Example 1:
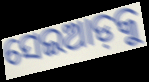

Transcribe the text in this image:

ସେଇଆଡ଼କୁ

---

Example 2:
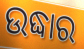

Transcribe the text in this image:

ଉଦ୍ଧାର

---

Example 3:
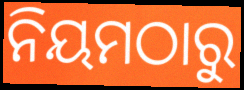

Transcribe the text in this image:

ନିୟମଠାରୁ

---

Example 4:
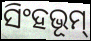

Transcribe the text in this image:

ସିଂହଭୂମ୍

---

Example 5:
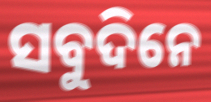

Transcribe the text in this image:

ସବୁଦିନେ